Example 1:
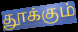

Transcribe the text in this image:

தூக்கும்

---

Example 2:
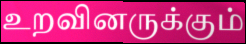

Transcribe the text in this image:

உறவினருக்கும்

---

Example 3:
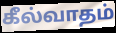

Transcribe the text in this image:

கீல்வாதம்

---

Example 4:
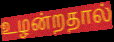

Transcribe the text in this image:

உழன்றதால்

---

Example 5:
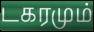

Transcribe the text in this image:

டகரமும்